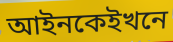
আইনকেইখনে